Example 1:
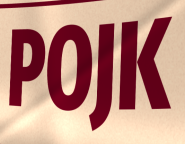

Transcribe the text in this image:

POJK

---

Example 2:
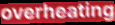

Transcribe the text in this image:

overheating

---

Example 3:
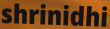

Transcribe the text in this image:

shrinidhi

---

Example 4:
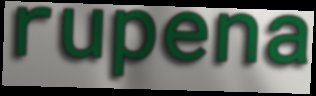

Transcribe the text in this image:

rupena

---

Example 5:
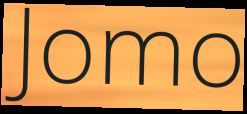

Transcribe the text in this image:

Jomo